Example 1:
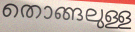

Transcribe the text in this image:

തൊങ്ങലുള്ള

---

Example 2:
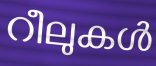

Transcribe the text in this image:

റീലുകൾ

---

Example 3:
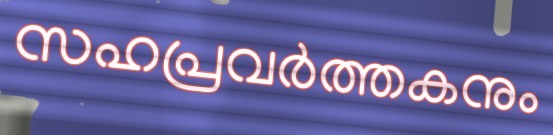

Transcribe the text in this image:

സഹപ്രവർത്തകനും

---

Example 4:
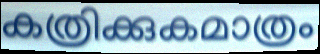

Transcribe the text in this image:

കത്രിക്കുകമാത്രം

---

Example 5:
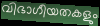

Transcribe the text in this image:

വിഭാഗീയതകളും